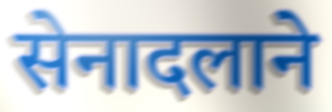
सेनादलाने